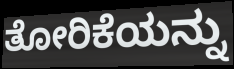
ತೋರಿಕೆಯನ್ನು